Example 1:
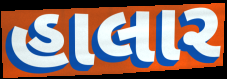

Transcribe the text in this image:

હાલાર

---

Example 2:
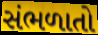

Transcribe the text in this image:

સંભળાતો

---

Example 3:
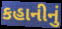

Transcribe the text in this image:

કહાનીનું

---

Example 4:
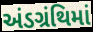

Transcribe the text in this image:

અંડગ્રંથિમાં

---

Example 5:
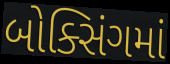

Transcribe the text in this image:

બોક્સિંગમાં